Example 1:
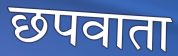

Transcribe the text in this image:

छपवाता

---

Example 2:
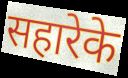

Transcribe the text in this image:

सहारेके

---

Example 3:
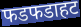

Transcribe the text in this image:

फडफडाहट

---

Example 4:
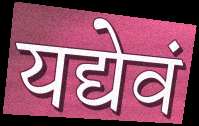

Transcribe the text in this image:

यद्येवं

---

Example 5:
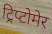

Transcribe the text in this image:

ट्रिप्टोमेर